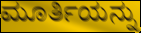
ಮೂರ್ತಿಯನ್ನು